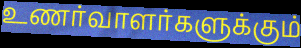
உணர்வாளர்களுக்கும்